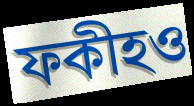
ফকীহও